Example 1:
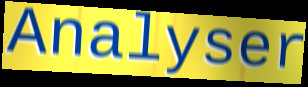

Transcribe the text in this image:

Analyser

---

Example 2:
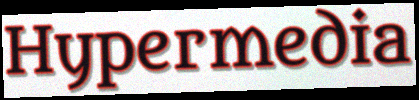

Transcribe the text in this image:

Hypermedia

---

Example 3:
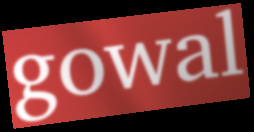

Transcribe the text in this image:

gowal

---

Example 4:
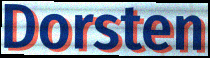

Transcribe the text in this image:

Dorsten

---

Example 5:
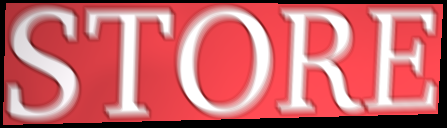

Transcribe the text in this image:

STORE